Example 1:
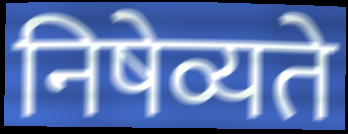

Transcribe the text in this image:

निषेव्यते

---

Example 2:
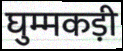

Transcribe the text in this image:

घुम्मकड़ी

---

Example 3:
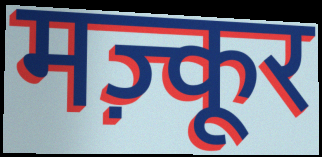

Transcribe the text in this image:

मज़्कूर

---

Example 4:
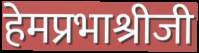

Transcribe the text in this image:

हेमप्रभाश्रीजी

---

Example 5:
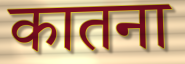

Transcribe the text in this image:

कातना